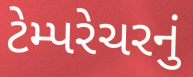
ટેમ્પરેચરનું